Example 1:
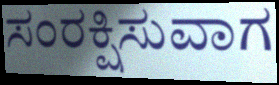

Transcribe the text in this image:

ಸಂರಕ್ಷಿಸುವಾಗ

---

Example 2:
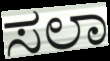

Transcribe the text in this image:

ಸಲಾ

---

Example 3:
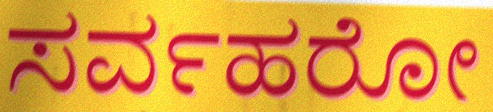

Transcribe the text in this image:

ಸರ್ವಹರೋ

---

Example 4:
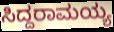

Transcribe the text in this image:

ಸಿದ್ದರಾಮಯ್ಯ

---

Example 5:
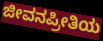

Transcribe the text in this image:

ಜೀವನಪ್ರೀತಿಯ